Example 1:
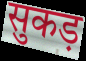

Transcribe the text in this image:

सुकड़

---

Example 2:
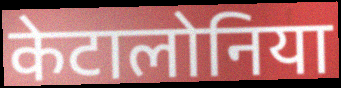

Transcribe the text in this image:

केटालोनिया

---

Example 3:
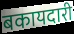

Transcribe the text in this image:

बकायदारी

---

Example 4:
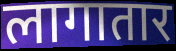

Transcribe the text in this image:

लागातार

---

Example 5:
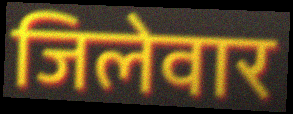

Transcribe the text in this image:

जिलेवार